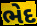
ભેદ